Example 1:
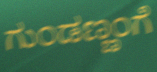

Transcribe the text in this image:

ಗುಂಡಣ್ಣಂಗೆ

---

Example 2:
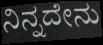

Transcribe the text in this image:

ನಿನ್ನದೇನು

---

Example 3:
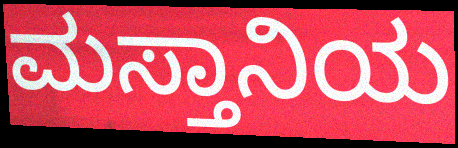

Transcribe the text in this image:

ಮಸ್ತಾನಿಯ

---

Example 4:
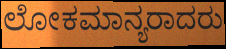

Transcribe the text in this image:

ಲೋಕಮಾನ್ಯರಾದರು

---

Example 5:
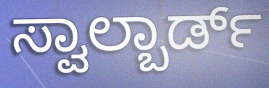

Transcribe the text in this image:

ಸ್ವಾಲ್ಬಾರ್ಡ್